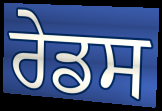
ਰੇਡਸ